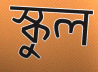
স্কুল